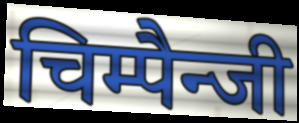
चिम्पैन्जी